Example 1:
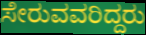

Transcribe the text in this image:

ಸೇರುವವರಿದ್ದರು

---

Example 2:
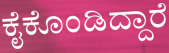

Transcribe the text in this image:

ಕೈಕೊಂಡಿದ್ದಾರೆ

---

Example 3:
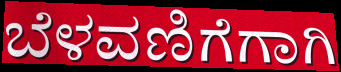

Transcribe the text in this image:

ಬೆಳವಣಿಗೆಗಾಗಿ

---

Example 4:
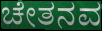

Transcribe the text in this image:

ಚೇತನವ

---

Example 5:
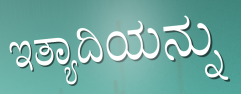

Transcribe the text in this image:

ಇತ್ಯಾದಿಯನ್ನು